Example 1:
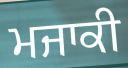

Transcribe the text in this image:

ਮਜਾਕੀ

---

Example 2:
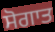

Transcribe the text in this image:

ਸੋਗਾਤ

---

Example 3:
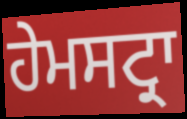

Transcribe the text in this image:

ਹੇਮਸਟ੍ਰਾ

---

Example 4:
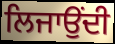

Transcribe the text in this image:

ਲਿਜਾਉਂਦੀ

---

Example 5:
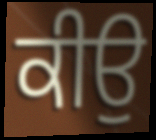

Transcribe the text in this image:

ਕੀਉ